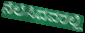
ನೆಲೆಸಿದವರಲ್ಲಿ